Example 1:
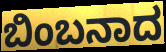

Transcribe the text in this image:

ಬಿಂಬನಾದ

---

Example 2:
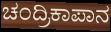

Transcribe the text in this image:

ಚಂದ್ರಿಕಾಪಾನ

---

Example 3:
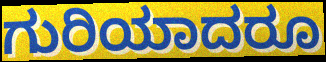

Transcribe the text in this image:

ಗುರಿಯಾದರೂ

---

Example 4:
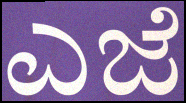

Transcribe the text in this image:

ಎಜೆ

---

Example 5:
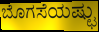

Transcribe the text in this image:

ಬೊಗಸೆಯಷ್ಟು